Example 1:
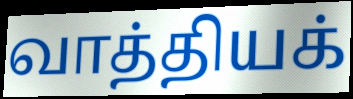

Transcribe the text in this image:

வாத்தியக்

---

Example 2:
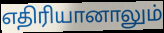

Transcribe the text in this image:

எதிரியானாலும்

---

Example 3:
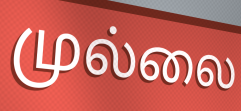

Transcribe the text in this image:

முல்லை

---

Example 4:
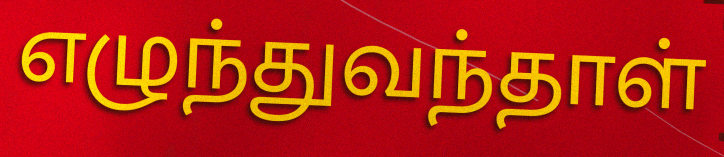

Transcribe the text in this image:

எழுந்துவந்தாள்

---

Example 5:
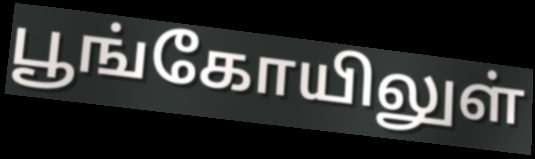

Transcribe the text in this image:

பூங்கோயிலுள்